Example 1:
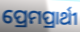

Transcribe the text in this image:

ପ୍ରେମପ୍ରାର୍ଥୀ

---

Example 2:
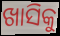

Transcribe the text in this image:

ଖାସିକୁ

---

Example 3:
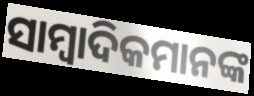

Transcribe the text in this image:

ସାମ୍ବାଦିକମାନଙ୍କ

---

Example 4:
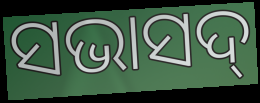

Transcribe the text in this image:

ସଭାସଦ୍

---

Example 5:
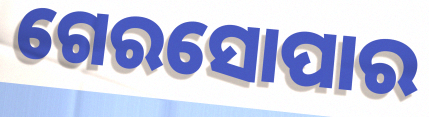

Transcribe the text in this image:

ଗେରସୋପାର